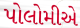
પોલોમીએ